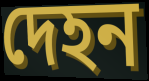
দেহন